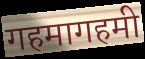
गहमागहमी